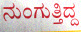
ನುಂಗುತ್ತಿದ್ದ